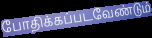
போதிக்கப்படவேண்டும்